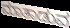
ಮಾತಾಡುವ